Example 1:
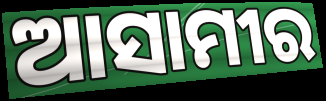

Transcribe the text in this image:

ଆସାମୀର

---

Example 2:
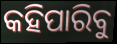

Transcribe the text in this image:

କହିପାରିବୁ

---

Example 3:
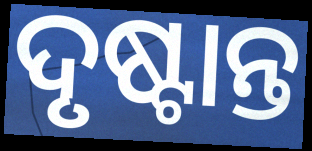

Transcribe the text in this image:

ଦୃଷ୍ଟାନ୍ତ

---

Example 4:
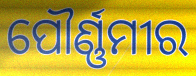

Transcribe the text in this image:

ପୌର୍ଣ୍ଣମୀର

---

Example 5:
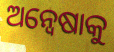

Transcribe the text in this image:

ଅନ୍ୱେଷାକୁ